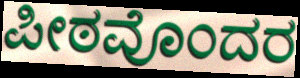
ಪೀಠವೊಂದರ